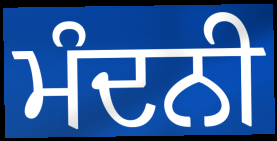
ਮੰਦਨੀ